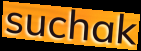
suchak